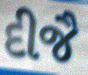
દીજૈ